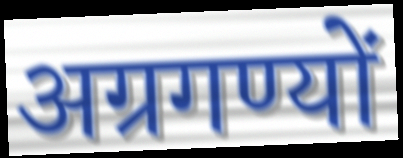
अग्रगण्यों